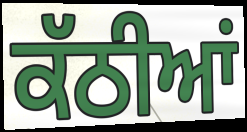
ਕੱਠੀਆਂ